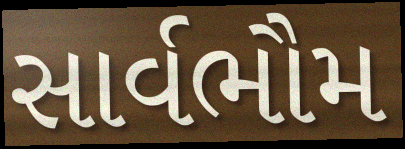
સાર્વભૌમ